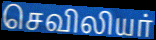
செவிலியர்